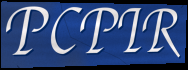
PCPIR